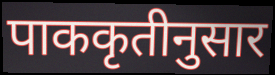
पाककृतीनुसार